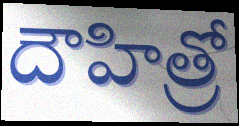
దౌహిత్రో